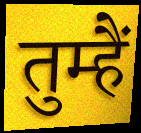
तुम्हैं